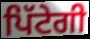
ਪਿੱਟੇਗੀ